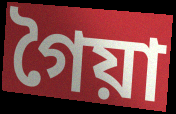
গৈয়া